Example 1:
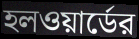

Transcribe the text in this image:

হলওয়ার্ডের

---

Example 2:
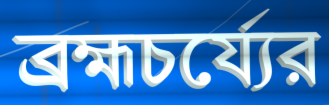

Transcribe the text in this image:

ব্রহ্মচর্য্যের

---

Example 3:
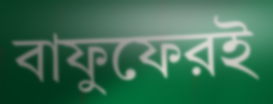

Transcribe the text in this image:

বাফুফেরই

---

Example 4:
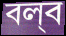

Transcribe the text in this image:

বল্‌ব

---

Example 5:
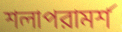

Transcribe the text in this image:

শলাপরামর্শ